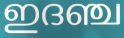
ഇദഞ്ച